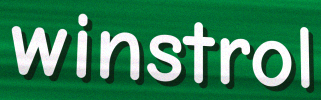
winstrol